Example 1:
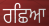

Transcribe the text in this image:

ਰਛਿਆ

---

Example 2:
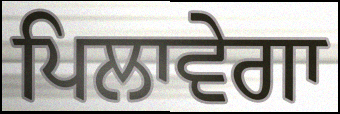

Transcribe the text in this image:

ਪਿਲਾਵੇਗਾ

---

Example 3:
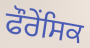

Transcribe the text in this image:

ਫੌਰੇਂਸਿਕ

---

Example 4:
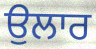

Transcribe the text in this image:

ਉਲਾਰ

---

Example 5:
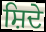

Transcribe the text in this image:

ਸ਼ਿਦੇ